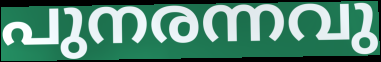
പുനരന്നവു